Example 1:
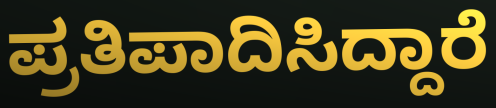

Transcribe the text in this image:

ಪ್ರತಿಪಾದಿಸಿದ್ದಾರೆ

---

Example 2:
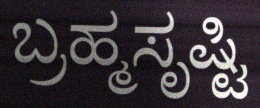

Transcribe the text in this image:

ಬ್ರಹ್ಮಸೃಷ್ಟಿ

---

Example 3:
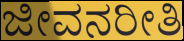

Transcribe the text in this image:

ಜೀವನರೀತಿ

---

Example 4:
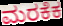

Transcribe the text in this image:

ಮರಕೆಕ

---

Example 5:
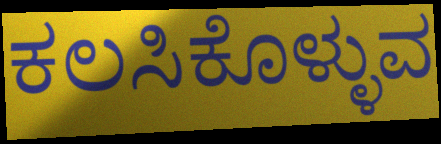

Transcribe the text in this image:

ಕಲಸಿಕೊಳ್ಳುವ